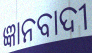
ଜ୍ଞାନବାଦୀ